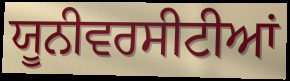
ਯੂਨੀਵਰਸੀਟੀਆਂ